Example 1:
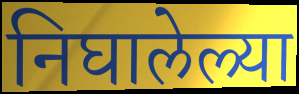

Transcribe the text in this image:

निघालेल्या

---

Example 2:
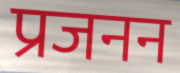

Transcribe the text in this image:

प्रजनन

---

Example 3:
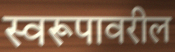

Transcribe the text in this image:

स्वरूपावरील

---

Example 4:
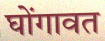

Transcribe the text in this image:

घोंगावत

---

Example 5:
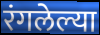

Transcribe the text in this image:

रंगलेल्या